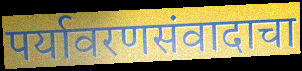
पर्यावरणसंवादाचा